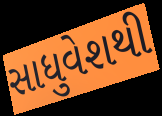
સાધુવેશથી